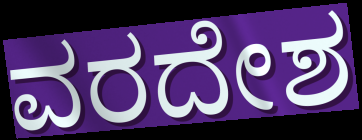
ವರದೇಶ